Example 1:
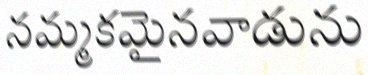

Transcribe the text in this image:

నమ్మకమైనవాడును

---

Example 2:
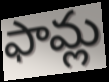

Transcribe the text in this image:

ఫామ్ల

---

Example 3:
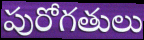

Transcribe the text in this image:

పురోగతులు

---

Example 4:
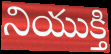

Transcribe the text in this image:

నియుక్తి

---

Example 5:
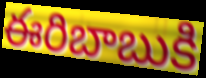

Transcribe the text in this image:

ఈరిబాబుకి